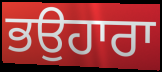
ਭਉਹਾਰਾ